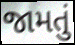
જામતું